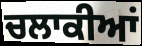
ਚਲਾਕੀਆਂ